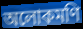
অলোকমণি